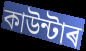
কাউন্টাৰ